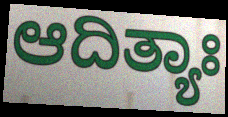
ಆದಿತ್ಯಾಃ